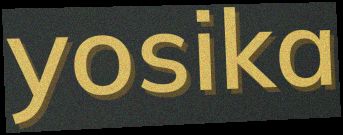
yosika